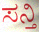
ಸನ್ತಿ